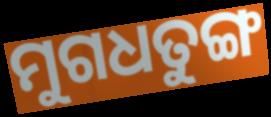
ମୁଗଧତୁଙ୍ଗ